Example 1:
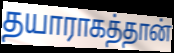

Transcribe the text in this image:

தயாராகத்தான்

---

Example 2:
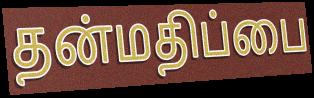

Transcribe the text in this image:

தன்மதிப்பை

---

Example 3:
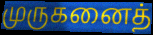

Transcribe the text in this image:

முருகனைத்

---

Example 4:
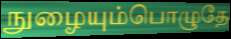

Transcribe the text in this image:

நுழையும்பொழுதே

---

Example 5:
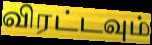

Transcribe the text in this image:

விரட்டவும்